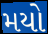
મયો